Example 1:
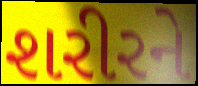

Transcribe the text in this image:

શરીરને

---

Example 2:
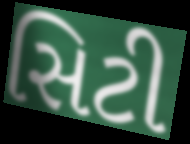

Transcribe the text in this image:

સિટી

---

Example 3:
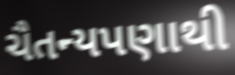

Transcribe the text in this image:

ચૈતન્યપણાથી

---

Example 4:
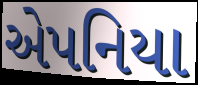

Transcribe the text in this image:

એપનિયા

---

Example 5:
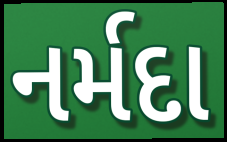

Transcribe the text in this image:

નર્મદા